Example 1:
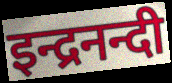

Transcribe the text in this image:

इन्द्रनन्दी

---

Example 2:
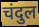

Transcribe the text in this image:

चंदुल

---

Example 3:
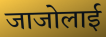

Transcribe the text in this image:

जाजोलाई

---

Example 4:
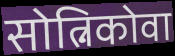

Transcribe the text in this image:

सोत्निकोवा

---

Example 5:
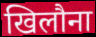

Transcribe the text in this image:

खिलौना